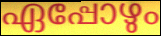
ഏപ്പോഴും